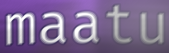
maatu